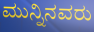
ಮುನ್ನಿನವರು